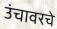
उंचावरचे